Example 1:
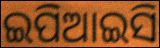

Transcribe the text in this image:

ଇପିଆଇସି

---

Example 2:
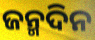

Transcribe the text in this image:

ଜନ୍ମଦିନ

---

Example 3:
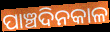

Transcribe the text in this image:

ପାଞ୍ଚଦିନକାଳ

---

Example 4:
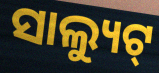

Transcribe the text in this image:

ସାଲ୍ୟୁଟ୍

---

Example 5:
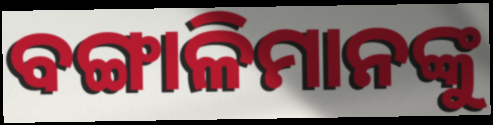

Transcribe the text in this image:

ବଙ୍ଗାଳିମାନଙ୍କୁ